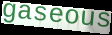
gaseous